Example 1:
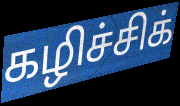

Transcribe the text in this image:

கழிச்சிக்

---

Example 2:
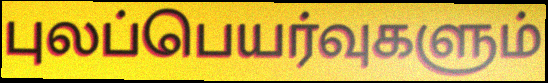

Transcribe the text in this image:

புலப்பெயர்வுகளும்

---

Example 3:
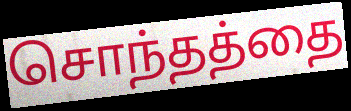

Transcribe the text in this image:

சொந்தத்தை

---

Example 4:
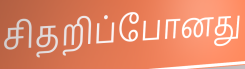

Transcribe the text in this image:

சிதறிப்போனது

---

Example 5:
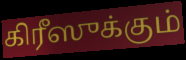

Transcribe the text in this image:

கிரீஸுக்கும்